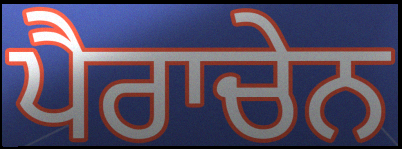
ਪੈਰਾਚੇਨ